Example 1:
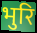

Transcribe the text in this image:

भुरि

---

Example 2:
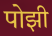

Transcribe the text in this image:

पोझी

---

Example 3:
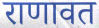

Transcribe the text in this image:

राणावत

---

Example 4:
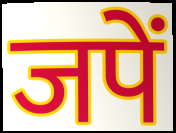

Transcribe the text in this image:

जपें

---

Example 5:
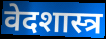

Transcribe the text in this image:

वेदशास्त्र